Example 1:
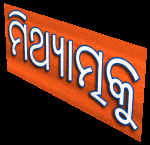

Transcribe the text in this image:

ମିଥ୍ୟାତ୍ମକୁ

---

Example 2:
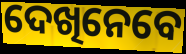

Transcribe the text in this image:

ଦେଖିନେବେ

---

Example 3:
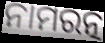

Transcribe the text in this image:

ନାମରତ୍ନ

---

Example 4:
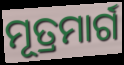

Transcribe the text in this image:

ମୂତ୍ରମାର୍ଗ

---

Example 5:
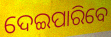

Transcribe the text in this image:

ଦେଇପାରିବେ